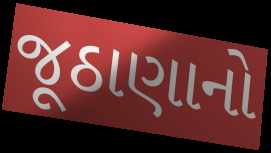
જૂઠાણાનો